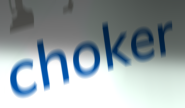
choker